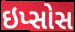
ઇપ્સોસ